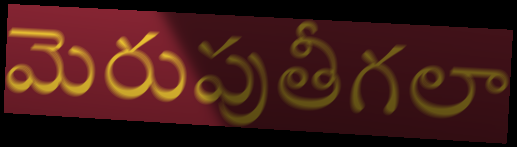
మెరుపుతీగలా